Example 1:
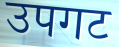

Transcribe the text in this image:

उपगट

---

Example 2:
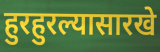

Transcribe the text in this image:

हुरहुरल्यासारखे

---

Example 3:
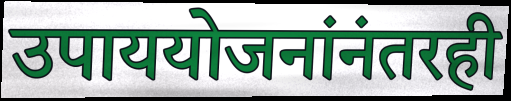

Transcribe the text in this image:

उपाययोजनांनंतरही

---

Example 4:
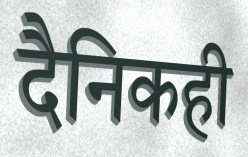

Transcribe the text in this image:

दैनिकही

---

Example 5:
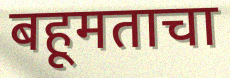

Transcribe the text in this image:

बहूमताचा